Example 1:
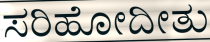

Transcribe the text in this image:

ಸರಿಹೋದೀತು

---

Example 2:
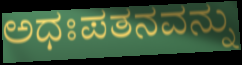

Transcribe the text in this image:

ಅಧಃಪತನವನ್ನು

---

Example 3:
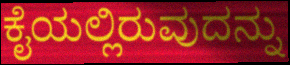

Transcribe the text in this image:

ಕೈಯಲ್ಲಿರುವುದನ್ನು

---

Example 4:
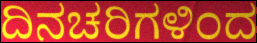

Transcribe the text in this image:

ದಿನಚರಿಗಳಿಂದ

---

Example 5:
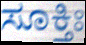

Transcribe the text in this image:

ಸೂಕ್ತಿಃ